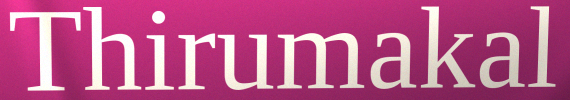
Thirumakal